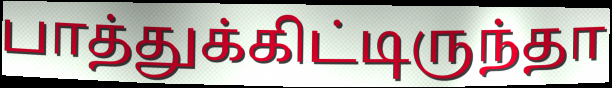
பாத்துக்கிட்டிருந்தா